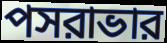
পসরাভার